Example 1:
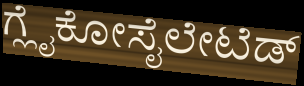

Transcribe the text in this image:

ಗ್ಲೈಕೋಸೈಲೇಟೆಡ್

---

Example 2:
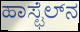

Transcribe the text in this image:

ಹಾಸ್ಟೆಲ್‌ನ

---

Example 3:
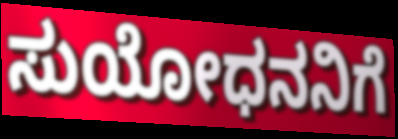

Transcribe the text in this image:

ಸುಯೋಧನನಿಗೆ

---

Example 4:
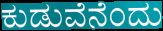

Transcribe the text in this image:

ಕುಡುವೆನೆಂದು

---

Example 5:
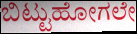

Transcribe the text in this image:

ಬಿಟ್ಟುಹೋಗಲೇ